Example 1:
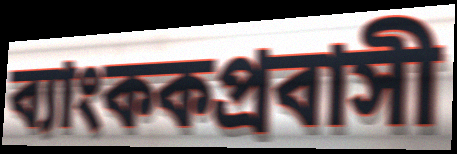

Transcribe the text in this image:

ব্যাংককপ্রবাসী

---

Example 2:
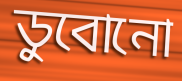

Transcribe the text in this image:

ডুবোনো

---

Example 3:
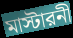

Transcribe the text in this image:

মাস্টারনী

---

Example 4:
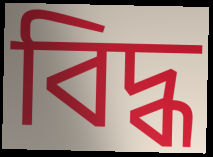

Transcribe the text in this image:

বিদ্ধ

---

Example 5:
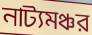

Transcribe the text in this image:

নাট্যমঞ্চর